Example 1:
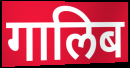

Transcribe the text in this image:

गालिब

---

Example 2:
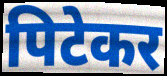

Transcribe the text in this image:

पिटेकर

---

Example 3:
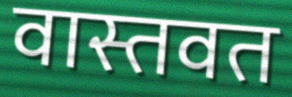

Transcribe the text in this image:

वास्‍तवत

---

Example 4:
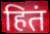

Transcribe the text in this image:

हितं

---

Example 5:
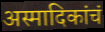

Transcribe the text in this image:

अस्मादिकांचं